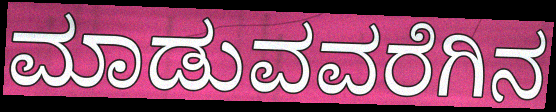
ಮಾಡುವವರೆಗಿನ